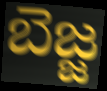
బెజ్జ